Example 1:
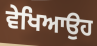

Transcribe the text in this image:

ਵੇਖਿਆਉਹ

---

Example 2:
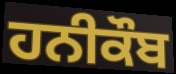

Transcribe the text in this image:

ਹਨੀਕੌਬ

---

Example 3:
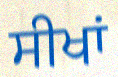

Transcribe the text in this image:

ਸੀਖਾਂ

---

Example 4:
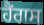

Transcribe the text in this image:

ਹੈਂਗਸ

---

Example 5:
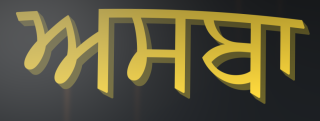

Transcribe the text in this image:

ਅਸਬਾ